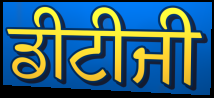
ਡੀਟੀਜੀ